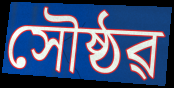
সৌষ্ঠৱ